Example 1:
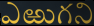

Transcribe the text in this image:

ఎఱుగని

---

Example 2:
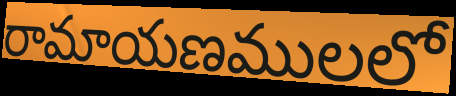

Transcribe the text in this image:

రామాయణములలో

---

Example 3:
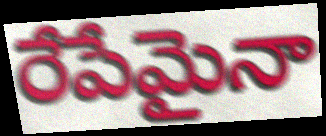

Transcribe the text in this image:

రేపేమైనా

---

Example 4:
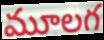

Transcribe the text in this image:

మూలగ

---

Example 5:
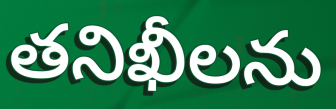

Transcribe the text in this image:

తనిఖీలను